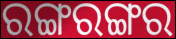
ରଙ୍ଗରଙ୍ଗର